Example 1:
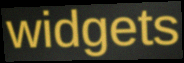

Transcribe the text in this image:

widgets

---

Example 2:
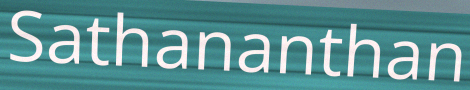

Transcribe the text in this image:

Sathananthan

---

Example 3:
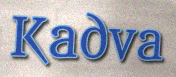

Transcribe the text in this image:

Kadva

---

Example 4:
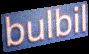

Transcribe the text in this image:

bulbil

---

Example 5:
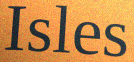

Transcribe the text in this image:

Isles